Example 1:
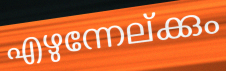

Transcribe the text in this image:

എഴുന്നേല്ക്കും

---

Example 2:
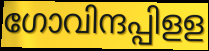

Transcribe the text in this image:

ഗോവിന്ദപ്പിളള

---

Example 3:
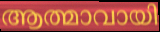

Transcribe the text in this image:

ആത്മാവായി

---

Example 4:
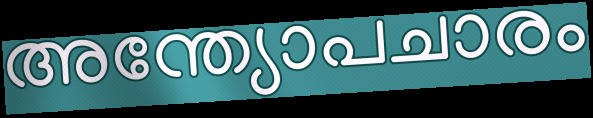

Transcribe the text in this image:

അന്ത്യോപചാരം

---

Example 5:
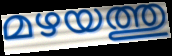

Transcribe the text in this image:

മഴയത്തു